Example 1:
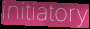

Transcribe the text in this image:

initiatory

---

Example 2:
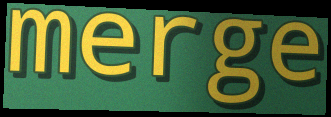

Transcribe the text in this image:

merge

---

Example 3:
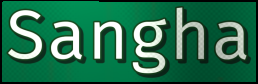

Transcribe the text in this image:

Sangha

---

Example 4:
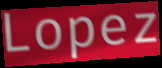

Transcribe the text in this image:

Lopez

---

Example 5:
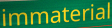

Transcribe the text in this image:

immaterial